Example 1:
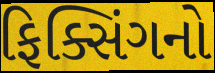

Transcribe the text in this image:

ફિક્સિંગનો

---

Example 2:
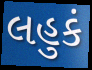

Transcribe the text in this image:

લહુકં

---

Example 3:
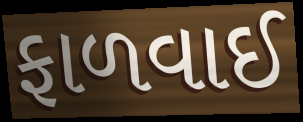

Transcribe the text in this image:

ફાળવાઈ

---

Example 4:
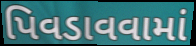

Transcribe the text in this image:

પિવડાવવામાં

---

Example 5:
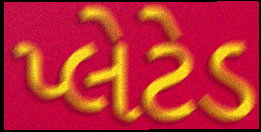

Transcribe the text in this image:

પ્લેટેડ